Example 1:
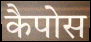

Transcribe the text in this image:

कैपोस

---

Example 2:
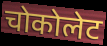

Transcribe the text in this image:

चोकोलेट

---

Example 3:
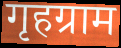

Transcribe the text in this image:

गृहग्राम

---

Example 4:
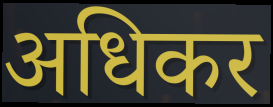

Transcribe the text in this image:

अधिकर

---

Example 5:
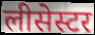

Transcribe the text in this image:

लीसेस्टर